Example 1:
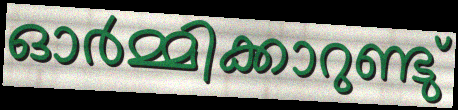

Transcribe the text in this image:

ഓർമ്മിക്കാറുണ്ടു്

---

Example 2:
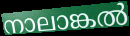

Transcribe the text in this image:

നാലാങ്കൽ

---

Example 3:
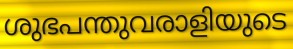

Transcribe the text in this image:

ശുഭപന്തുവരാളിയുടെ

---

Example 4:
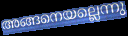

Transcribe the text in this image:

അങ്ങനെയല്ലെന്നു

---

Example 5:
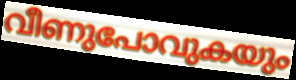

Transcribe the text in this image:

വീണുപോവുകയും